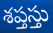
శప్తస్తు